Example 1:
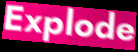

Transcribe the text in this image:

Explode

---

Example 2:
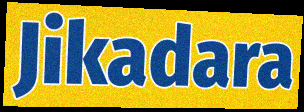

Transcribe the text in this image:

Jikadara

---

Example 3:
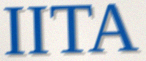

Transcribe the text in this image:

IITA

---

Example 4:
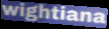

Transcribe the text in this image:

wightiana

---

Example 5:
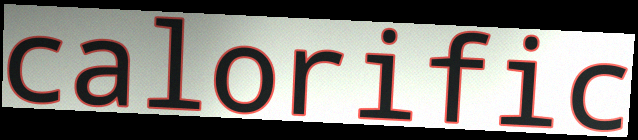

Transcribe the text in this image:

calorific